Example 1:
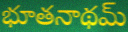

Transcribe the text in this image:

భూతనాథమ్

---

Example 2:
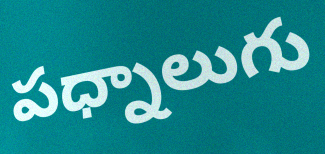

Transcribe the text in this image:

పధ్నాలుగు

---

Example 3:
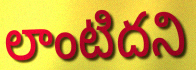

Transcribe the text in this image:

లాంటిదని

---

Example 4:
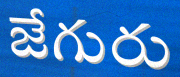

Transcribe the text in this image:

జేగురు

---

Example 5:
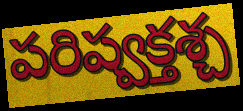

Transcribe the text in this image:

పరిష్వక్తశ్చ